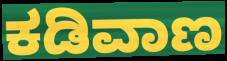
ಕಡಿವಾಣ